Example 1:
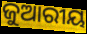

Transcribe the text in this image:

ଜୁଆରୀୟ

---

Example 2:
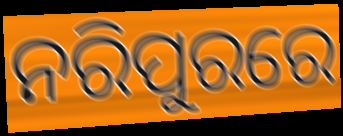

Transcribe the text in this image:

ନରିପୁରରେ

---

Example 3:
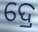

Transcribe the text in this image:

ଦ୍ରେ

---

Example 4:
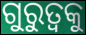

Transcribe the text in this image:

ଗୁରୁତ୍ବକୁ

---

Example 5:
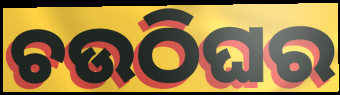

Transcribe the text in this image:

ଚଉଠିଘର